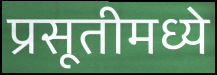
प्रसूतीमध्ये